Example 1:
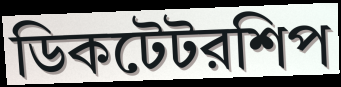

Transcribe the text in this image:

ডিকটেটরশিপ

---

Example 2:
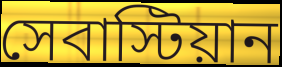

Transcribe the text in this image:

সেবাস্টিয়ান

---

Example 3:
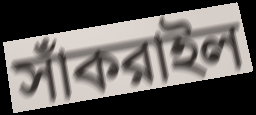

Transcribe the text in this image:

সাঁকরাইল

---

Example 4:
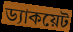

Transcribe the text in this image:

ড্যাকয়েট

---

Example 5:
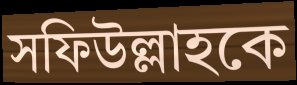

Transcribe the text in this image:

সফিউল্লাহকে